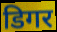
डिगर